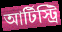
আর্টিস্ট্রি